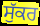
ਸੁੱਕਰ